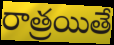
రాత్రయితే